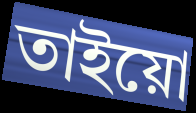
তাইয়ো